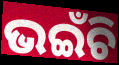
ଭଇଁଚି